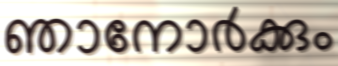
ഞാനോർക്കും